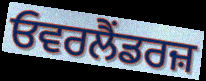
ਓਵਰਲੈਂਡਰਜ਼